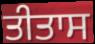
ਤੀਤਾਸ